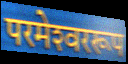
परमेश्वररूप